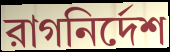
রাগনির্দেশ